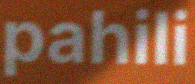
pahili